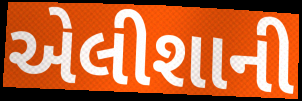
એલીશાની